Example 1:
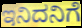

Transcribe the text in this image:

ಇನಿದನಿಗೆ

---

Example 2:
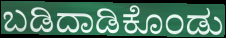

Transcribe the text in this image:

ಬಡಿದಾಡಿಕೊಂಡು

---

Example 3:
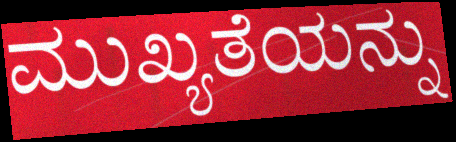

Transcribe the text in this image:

ಮುಖ್ಯತೆಯನ್ನು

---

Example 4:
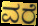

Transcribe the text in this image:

ವರೆ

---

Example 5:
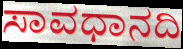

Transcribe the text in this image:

ಸಾವಧಾನದಿ